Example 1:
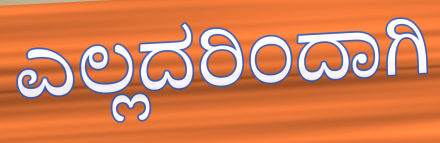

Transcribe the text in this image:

ಎಲ್ಲದರಿಂದಾಗಿ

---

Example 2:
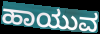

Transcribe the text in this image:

ಹಾಯುವ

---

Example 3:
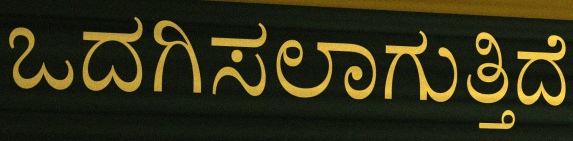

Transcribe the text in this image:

ಒದಗಿಸಲಾಗುತ್ತಿದೆ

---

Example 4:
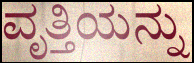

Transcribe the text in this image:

ವೃತ್ತಿಯನ್ನು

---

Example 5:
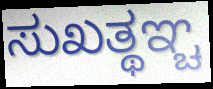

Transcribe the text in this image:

ಸುಖತ್ಥಞ್ಚ